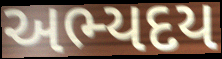
અભ્યદય